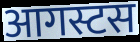
आगस्टस